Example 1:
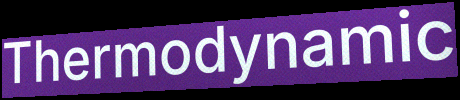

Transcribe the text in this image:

Thermodynamic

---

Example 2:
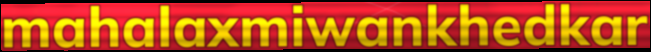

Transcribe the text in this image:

mahalaxmiwankhedkar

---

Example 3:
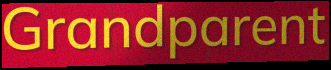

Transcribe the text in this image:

Grandparent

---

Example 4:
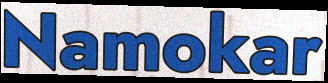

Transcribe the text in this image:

Namokar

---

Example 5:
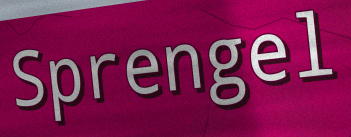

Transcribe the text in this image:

Sprengel